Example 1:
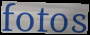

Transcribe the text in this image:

fotos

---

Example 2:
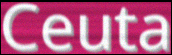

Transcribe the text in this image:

Ceuta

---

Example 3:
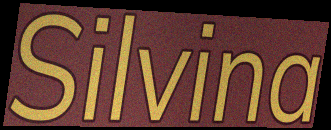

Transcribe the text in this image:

Silvina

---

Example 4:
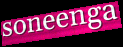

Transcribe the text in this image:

soneenga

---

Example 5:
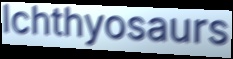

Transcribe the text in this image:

Ichthyosaurs